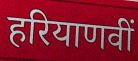
हरियाणवीं